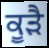
ਕੂੜੈ